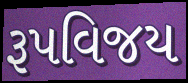
રૂપવિજય